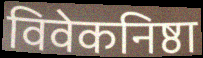
विवेकनिष्ठा